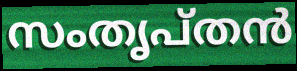
സംതൃപ്തൻ